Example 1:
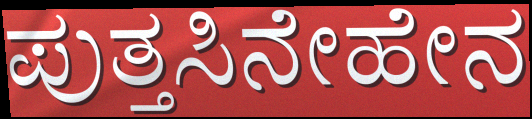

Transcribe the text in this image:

ಪುತ್ತಸಿನೇಹೇನ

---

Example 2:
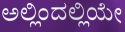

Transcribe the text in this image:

ಅಲ್ಲಿಂದಲ್ಲಿಯೇ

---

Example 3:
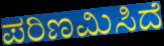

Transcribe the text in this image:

ಪರಿಣಮಿಸಿದೆ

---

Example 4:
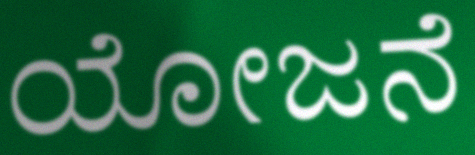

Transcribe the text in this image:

ಯೋಜನೆ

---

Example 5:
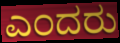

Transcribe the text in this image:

ಎಂದರು